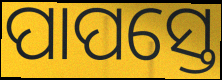
ପାପସ୍ତେ